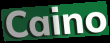
Caino